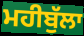
ਮਹੀਬੁੱਲਾ